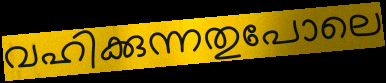
വഹിക്കുന്നതുപോലെ